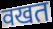
वखत